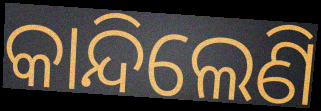
କାନ୍ଦିଲେଣି